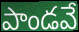
పాండవే